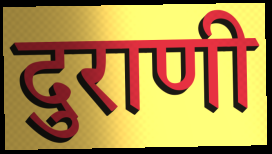
दुराणी